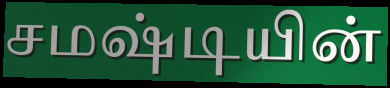
சமஷ்டியின்